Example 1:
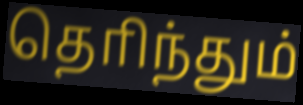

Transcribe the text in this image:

தெரிந்தும்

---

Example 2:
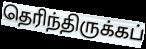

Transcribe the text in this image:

தெரிந்திருக்கப்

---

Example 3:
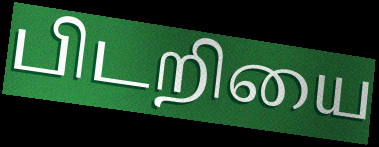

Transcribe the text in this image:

பிடறியை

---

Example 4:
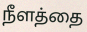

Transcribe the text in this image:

நீளத்தை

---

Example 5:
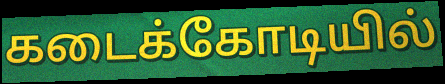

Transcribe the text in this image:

கடைக்கோடியில்